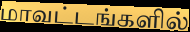
மாவட்டங்களில்